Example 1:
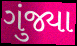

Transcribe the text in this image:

ગુંજ્યા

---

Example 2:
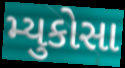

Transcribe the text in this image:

મ્યુકોસા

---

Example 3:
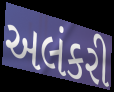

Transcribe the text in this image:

અલંકરી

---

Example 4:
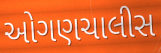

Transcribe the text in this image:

ઓગણચાલીસ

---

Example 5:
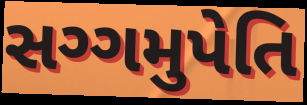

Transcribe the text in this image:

સગ્ગમુપેતિ